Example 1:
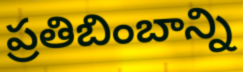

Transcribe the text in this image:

ప్రతిబింబాన్ని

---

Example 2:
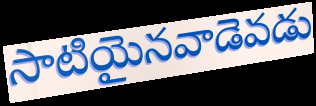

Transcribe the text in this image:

సాటియైనవాడెవడు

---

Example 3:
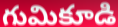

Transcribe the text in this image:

గుమికూడి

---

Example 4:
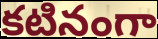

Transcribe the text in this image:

కటినంగా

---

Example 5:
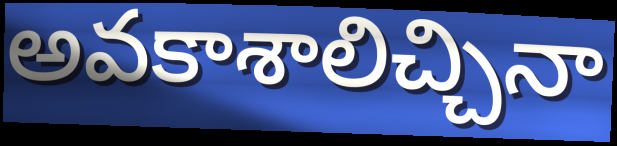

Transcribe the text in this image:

అవకాశాలిచ్చినా